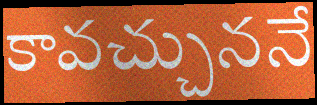
కావచ్చుననే